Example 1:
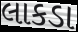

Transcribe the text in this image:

લાકડા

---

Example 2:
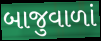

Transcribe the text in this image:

બાજુવાળાં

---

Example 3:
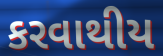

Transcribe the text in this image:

કરવાથીય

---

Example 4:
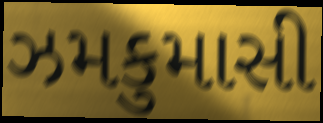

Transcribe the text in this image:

ઝમકુમાસી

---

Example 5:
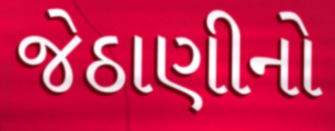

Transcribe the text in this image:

જેઠાણીનો